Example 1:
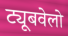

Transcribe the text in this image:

ट्यूबवेलो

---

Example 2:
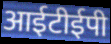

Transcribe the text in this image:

आईटीईपी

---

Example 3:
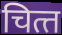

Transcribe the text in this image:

चित्‍त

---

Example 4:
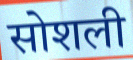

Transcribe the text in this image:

सोशली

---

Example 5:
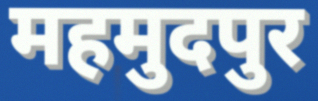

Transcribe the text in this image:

महमुदपुर